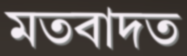
মতবাদত